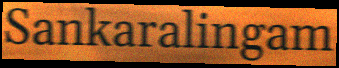
Sankaralingam